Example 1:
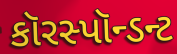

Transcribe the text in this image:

કૉરસ્પૉન્ડન્ટ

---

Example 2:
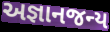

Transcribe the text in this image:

અજ્ઞાનજન્ય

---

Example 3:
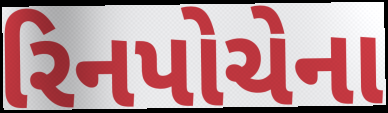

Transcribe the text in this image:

રિનપોચેના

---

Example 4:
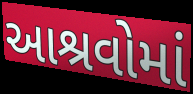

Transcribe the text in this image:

આશ્રવોમાં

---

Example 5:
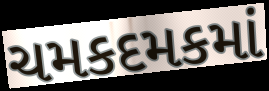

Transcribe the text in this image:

ચમકદમકમાં